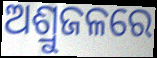
ଅଶ୍ରୁଜଳରେ